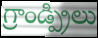
గ్రాండ్ప్రిలు